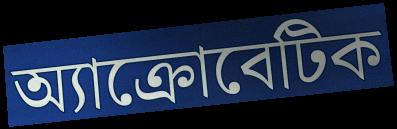
অ্যাক্রোবেটিক